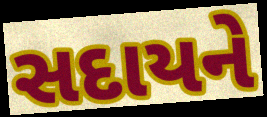
સદાયને